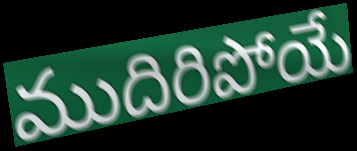
ముదిరిపోయే